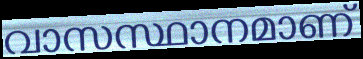
വാസസ്ഥാനമാണ്